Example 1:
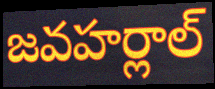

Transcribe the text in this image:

జవహర్లాల్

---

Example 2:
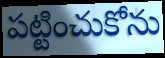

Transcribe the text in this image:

పట్టించుకోను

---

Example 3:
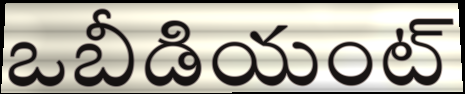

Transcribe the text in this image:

ఒబీడియంట్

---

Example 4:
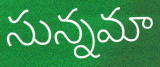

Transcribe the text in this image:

సున్నమా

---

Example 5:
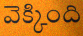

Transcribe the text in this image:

వెక్కింది